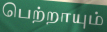
பெற்றாயும்